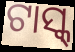
ଟାସ୍କ୍